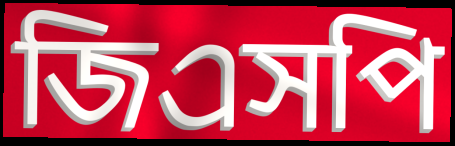
জিএসপি